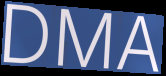
DMA